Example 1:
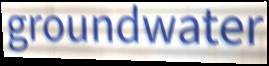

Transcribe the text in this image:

groundwater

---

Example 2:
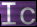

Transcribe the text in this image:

Ic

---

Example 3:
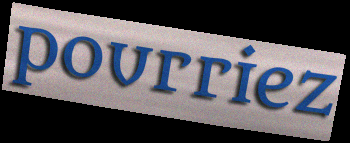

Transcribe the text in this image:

pourriez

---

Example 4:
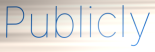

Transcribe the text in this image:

Publicly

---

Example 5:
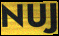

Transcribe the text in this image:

NUJ